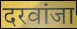
दरवांजा